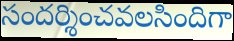
సందర్శించవలసిందిగా